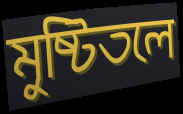
মুষ্টিতলে